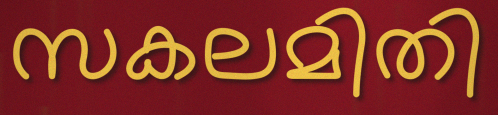
സകലമിതി